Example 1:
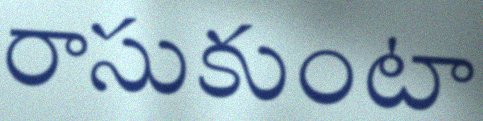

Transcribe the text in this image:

రాసుకుంటా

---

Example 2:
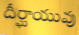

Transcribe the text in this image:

దీర్ఘాయువు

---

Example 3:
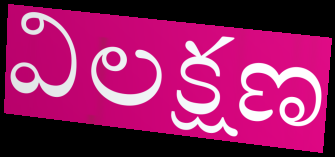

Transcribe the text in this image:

విలక్షణ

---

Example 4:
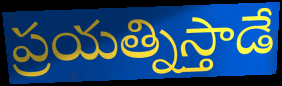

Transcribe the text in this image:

ప్రయత్నిస్తాడే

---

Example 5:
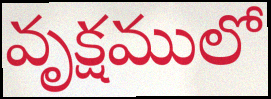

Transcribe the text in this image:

వృక్షములో